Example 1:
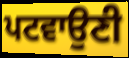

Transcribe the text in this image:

ਪਟਵਾਉਣੀ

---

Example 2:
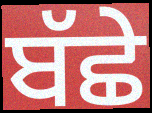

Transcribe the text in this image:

ਬੱਛੇ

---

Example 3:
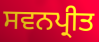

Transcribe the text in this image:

ਸਵਨਪ੍ਰੀਤ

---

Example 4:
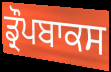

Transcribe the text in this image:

ਡ੍ਰੌਪਬਾਕਸ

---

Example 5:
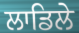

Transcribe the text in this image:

ਲਾਡਿਲੇ